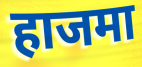
हाजमा